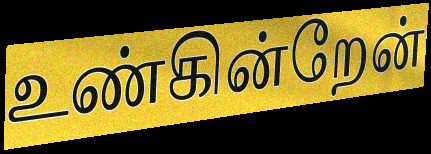
உண்கின்றேன்